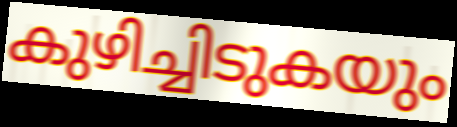
കുഴിച്ചിടുകയും